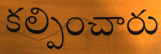
కల్పించారు